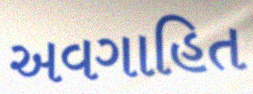
અવગાહિત